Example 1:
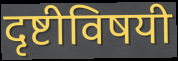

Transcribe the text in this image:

दृष्टीविषयी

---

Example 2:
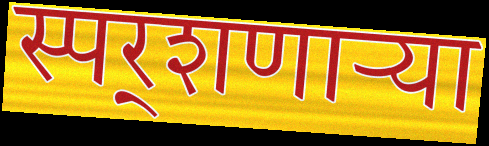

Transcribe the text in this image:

स्पर्शणाऱ्या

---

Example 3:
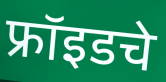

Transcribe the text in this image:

फ्रॉइडचे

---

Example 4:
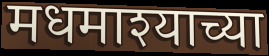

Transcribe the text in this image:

मधमाश्याच्या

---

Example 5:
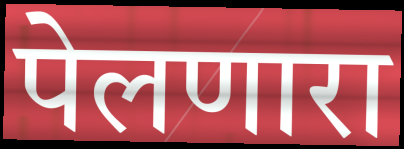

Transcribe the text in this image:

पेलणारा